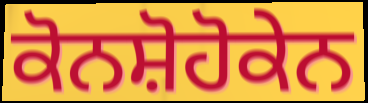
ਕੋਨਸ਼ੋਹੋਕੇਨ